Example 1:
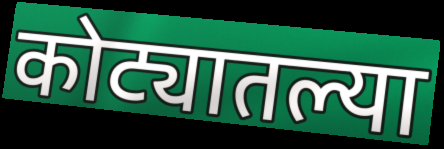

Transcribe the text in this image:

कोट्यातल्या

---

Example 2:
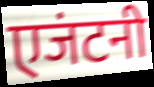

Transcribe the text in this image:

एजंटनी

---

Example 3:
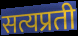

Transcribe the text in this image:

सत्यप्रती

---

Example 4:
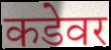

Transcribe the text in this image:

कडेवर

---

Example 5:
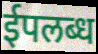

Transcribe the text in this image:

ईपलब्ध